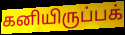
கனியிருப்பக்